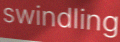
swindling